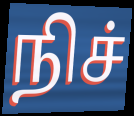
நிச்